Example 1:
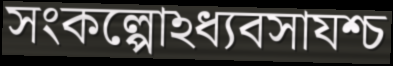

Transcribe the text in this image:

সংকল্পোঽধ্যবসাযশ্চ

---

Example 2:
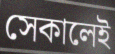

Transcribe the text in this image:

সেকালেই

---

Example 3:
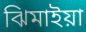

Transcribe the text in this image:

ঝিমাইয়া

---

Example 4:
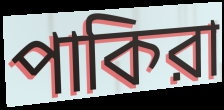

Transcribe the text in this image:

পাকিরা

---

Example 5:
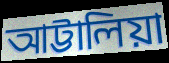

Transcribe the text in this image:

আট্টালিয়া